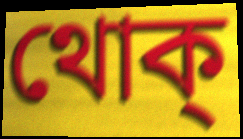
থোক্